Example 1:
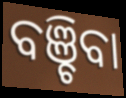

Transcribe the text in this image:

ବଞ୍ଚିବା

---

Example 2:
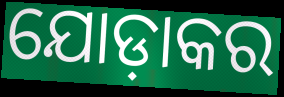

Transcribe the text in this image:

ଯୋଡ଼ାକର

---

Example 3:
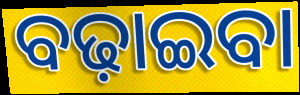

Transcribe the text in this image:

ବଢ଼ାଇବା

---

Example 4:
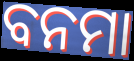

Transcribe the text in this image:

ବନମା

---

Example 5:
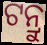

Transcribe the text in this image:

ଟନ୍ରୁ